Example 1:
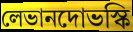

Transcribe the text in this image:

লেভানদোভস্কি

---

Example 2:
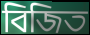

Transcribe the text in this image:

বিজিত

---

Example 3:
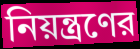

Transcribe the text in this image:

নিয়ন্ত্রণের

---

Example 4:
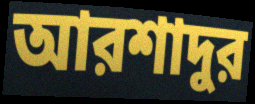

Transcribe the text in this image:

আরশাদুর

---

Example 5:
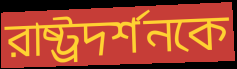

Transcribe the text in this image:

রাষ্ট্রদর্শনকে